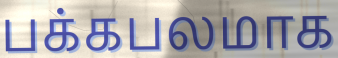
பக்கபலமாக